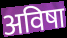
अविषा